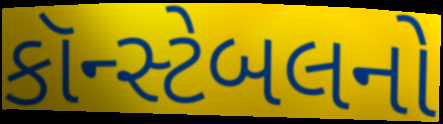
કૉન્સ્ટેબલનો